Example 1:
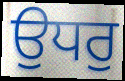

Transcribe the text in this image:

ਉਧਰੁ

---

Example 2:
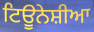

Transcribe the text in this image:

ਟਿਊਨੇਸ਼ੀਆ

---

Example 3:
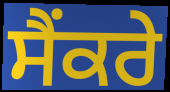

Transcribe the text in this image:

ਸੈਂਕਰੇ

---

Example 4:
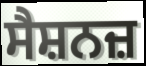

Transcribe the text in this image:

ਸੈਸ਼ਨਜ਼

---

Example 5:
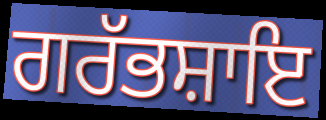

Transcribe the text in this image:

ਗਰੱਭਸ਼ਾਇ